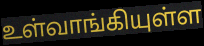
உள்வாங்கியுள்ள